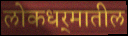
लोकधर्मातील